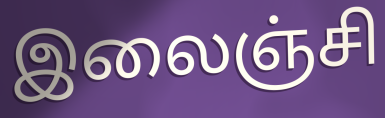
இலைஞ்சி